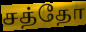
சத்தோ